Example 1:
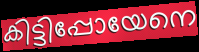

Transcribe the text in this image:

കിട്ടിപ്പോയേനെ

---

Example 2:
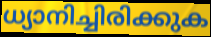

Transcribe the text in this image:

ധ്യാനിച്ചിരിക്കുക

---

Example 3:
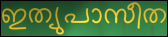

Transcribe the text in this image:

ഇത്യുപാസീത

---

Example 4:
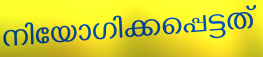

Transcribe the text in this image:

നിയോഗിക്കപ്പെട്ടത്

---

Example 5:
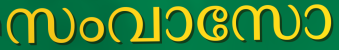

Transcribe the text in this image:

സംവാസോ